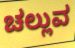
ಚಲ್ಲುವ